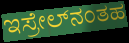
ಇಸ್ರೇಲ್‌ನಂತಹ